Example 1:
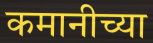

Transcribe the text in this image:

कमानीच्या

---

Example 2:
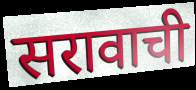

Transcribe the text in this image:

सरावाची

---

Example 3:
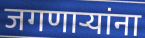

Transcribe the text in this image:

जगणाऱ्यांना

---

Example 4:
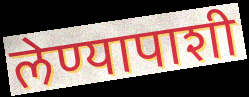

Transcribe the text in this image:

लेण्यापाशी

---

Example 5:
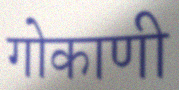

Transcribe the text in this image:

गोकाणी